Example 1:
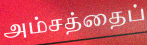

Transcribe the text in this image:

அம்சத்தைப்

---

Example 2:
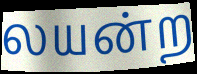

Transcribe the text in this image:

லயன்ற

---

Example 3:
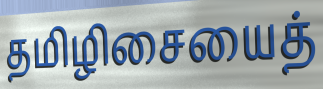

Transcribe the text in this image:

தமிழிசையைத்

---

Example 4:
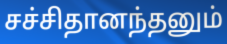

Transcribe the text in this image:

சச்சிதானந்தனும்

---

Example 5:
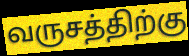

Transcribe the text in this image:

வருசத்திற்கு